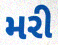
મરી